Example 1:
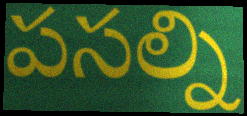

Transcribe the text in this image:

పసల్ని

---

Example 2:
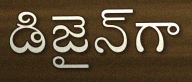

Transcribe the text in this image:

డిజైన్‌గా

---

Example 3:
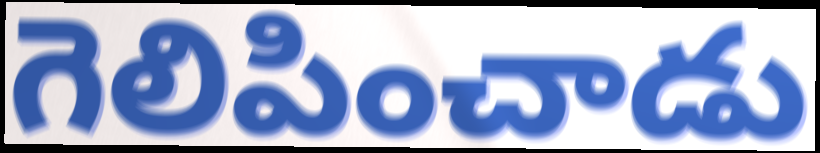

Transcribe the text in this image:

గెలిపించాడు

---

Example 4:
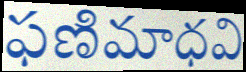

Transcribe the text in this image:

ఫణిమాధవి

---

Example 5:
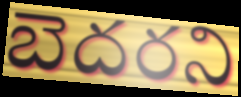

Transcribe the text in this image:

బెదరని